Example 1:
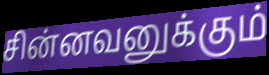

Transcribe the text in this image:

சின்னவனுக்கும்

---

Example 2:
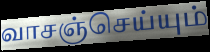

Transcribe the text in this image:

வாசஞ்செய்யும்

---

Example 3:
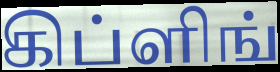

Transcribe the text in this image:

கிப்ளிங்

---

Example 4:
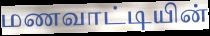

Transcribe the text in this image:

மணவாட்டியின்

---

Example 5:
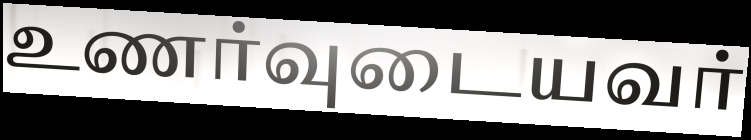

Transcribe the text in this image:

உணர்வுடையவர்